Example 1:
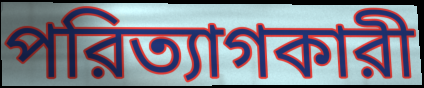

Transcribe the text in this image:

পরিত্যাগকারী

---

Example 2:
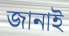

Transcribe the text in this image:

জানাই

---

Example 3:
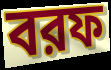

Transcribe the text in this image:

বরফ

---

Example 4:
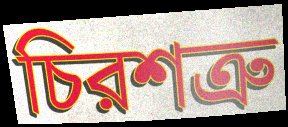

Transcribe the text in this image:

চিরশত্রু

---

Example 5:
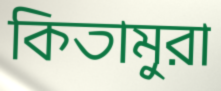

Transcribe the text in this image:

কিতামুরা